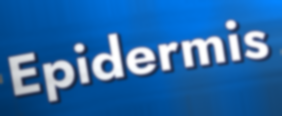
Epidermis